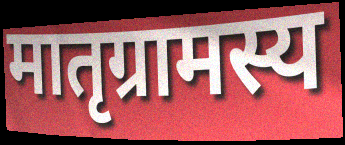
मातृग्रामस्य